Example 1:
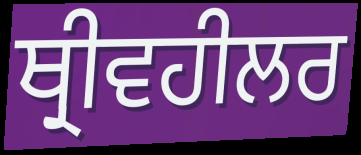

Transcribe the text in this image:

ਥ੍ਰੀਵਹੀਲਰ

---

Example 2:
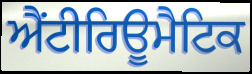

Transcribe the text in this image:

ਐਂਟੀਰਿਊਮੈਟਿਕ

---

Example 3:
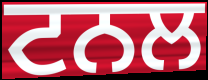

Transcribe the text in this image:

ਟਨਲ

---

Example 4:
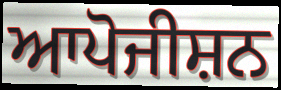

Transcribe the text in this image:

ਆਪੋਜੀਸ਼ਨ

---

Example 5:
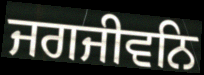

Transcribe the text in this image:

ਜਗਜੀਵਨਿ